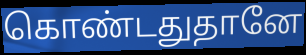
கொண்டதுதானே